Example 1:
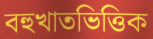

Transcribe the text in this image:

বহুখাতভিত্তিক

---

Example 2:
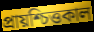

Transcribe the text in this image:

প্রায়শ্চিত্তকাল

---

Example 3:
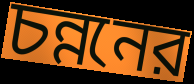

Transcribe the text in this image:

চন্ননের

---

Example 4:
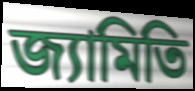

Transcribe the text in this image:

জ্যামিতি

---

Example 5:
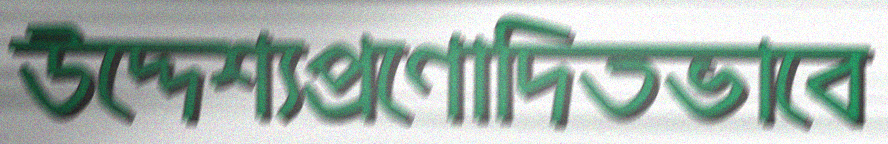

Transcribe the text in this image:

উদ্দেশ্যপ্রণোদিতভাবে